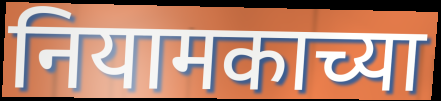
नियामकाच्या